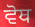
ਵੋਥ